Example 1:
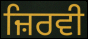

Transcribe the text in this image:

ਜ਼ਿਰਵੀ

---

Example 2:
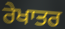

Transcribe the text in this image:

ਰੇਖਾਤਰ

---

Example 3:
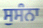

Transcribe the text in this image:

ਸੁਸੰਨਾ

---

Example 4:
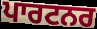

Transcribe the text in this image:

ਪਾਰਟਨਰ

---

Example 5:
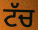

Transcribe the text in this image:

ਟੱਚ